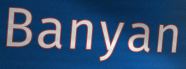
Banyan